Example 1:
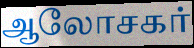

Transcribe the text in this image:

ஆலோசகர்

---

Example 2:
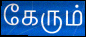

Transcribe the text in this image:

கேரும்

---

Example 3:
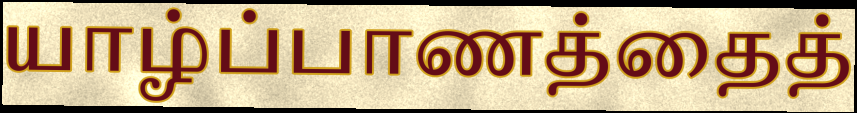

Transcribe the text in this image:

யாழ்ப்பாணத்தைத்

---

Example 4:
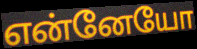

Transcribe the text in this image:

என்னேயோ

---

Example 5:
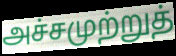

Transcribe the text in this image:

அச்சமுற்றுத்